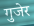
गुजेर